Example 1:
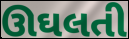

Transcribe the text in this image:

ઊઘલતી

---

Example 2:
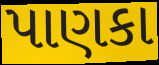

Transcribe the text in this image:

પાણકા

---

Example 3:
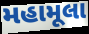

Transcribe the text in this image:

મહામૂલા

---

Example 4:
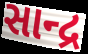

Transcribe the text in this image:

સાન્દ્ર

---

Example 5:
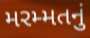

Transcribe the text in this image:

મરમ્મતનું